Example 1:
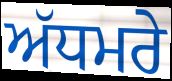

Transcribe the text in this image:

ਅੱਧਮਰੇ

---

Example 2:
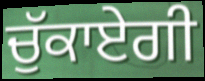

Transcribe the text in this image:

ਚੁੱਕਾਏਗੀ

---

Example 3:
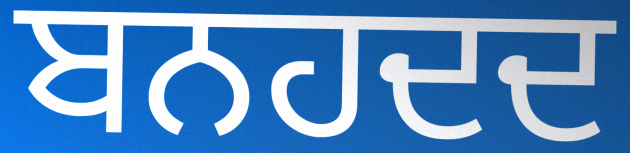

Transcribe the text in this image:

ਬਨਹਦਦ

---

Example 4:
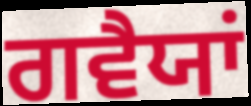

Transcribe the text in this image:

ਗਵੈਯਾਂ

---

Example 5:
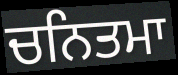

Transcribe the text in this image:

ਚਨਿਤਮਾ